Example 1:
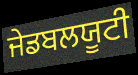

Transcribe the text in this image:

ਜੇਡਬਲਯੂਟੀ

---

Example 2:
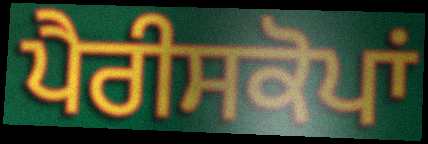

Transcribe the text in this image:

ਪੈਰੀਸਕੋਪਾਂ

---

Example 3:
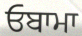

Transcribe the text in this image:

ਓਬਾਮਾ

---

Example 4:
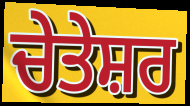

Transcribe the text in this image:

ਚੇਤੇਸ਼ਰ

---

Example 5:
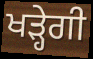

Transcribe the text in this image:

ਖੜ੍ਹੇਗੀ